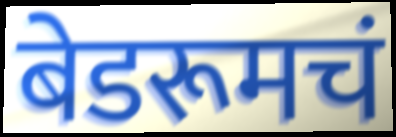
बेडरूमचं